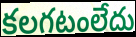
కలగటంలేదు